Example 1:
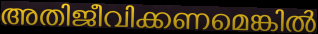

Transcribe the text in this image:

അതിജീവിക്കണമെങ്കിൽ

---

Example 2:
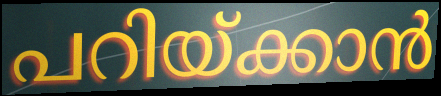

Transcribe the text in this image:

പറിയ്ക്കാൻ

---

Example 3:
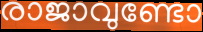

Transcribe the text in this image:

രാജാവുണ്ടോ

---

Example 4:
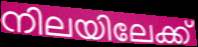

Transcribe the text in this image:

നിലയിലേക്ക്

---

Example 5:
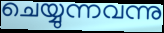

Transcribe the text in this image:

ചെയ്യുന്നവന്നു